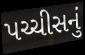
પચ્ચીસનું